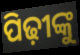
ପିଢ଼ୀଙ୍କୁ